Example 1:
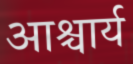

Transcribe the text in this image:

आश्चार्य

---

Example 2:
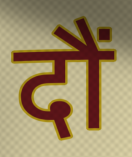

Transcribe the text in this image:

दौं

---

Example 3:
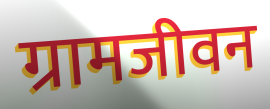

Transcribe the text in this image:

ग्रामजीवन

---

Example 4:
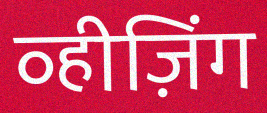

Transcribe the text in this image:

व्हीज़िंग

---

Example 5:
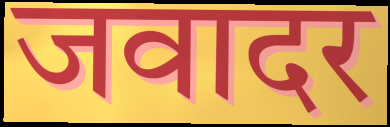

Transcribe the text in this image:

जवादर